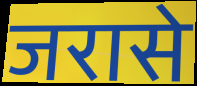
जरासे